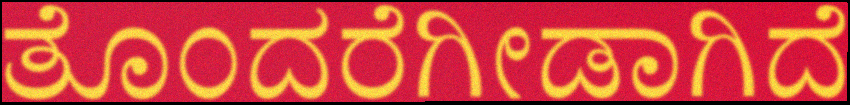
ತೊಂದರೆಗೀಡಾಗಿದೆ